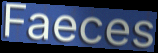
Faeces